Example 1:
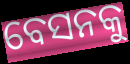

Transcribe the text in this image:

ବେସନକୁ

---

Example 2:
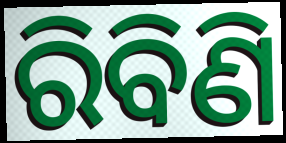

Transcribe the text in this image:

ରିବିଣି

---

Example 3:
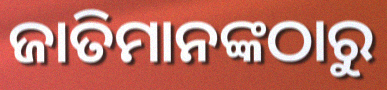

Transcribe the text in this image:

ଜାତିମାନଙ୍କଠାରୁ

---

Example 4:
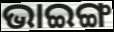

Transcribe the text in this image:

ଭାଇଙ୍ଗ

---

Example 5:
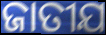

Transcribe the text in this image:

ଜାତୀଯ